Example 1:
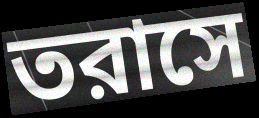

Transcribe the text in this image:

তরাসে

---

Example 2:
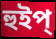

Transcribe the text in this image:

হুইপ্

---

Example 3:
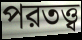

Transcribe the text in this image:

পরতত্ত্ব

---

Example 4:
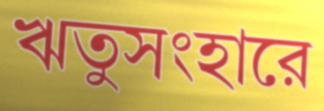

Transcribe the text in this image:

ঋতুসংহারে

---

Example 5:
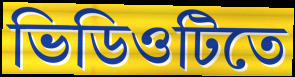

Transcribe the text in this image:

ভিডিওটিতে